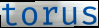
torus